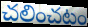
చలించటం